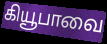
கியூபாவை